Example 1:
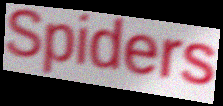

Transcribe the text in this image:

Spiders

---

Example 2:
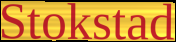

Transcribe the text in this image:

Stokstad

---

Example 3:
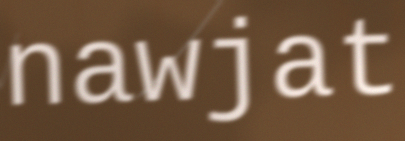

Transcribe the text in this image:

nawjat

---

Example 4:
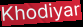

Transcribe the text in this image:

Khodiyar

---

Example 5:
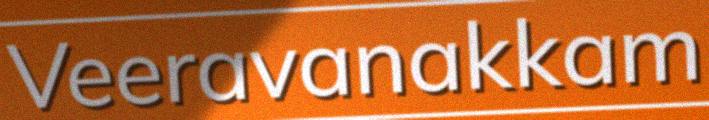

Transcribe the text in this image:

Veeravanakkam